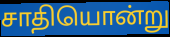
சாதியொன்று